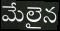
మేలైన